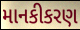
માનકીકરણ